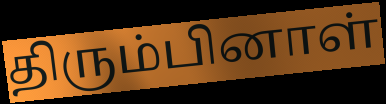
திரும்பினாள்